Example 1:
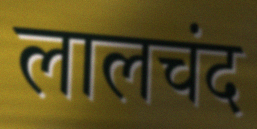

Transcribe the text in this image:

लालचंद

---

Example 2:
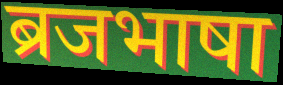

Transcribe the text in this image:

ब्रजभाषा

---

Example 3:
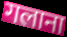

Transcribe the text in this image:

गलाना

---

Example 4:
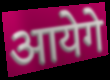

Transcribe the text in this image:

आयेगे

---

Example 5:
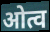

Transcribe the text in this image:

ओत्व